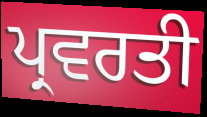
ਪ੍ਰਵਰਤੀ